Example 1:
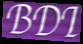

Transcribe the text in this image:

BDI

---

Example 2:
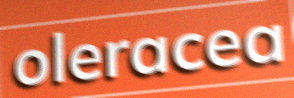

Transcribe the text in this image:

oleracea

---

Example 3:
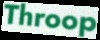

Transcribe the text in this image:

Throop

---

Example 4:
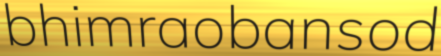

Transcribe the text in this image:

bhimraobansod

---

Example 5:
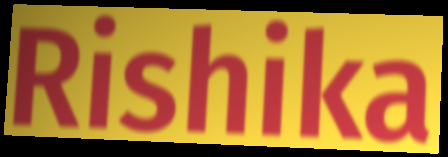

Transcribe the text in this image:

Rishika